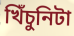
খিঁচুনিটা